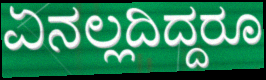
ಏನಲ್ಲದಿದ್ದರೂ